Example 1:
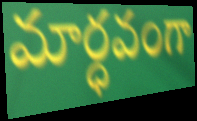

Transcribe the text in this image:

మార్ధవంగా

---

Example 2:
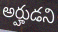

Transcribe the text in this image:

అర్హుడని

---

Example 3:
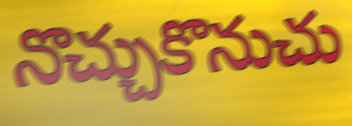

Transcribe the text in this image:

నొచ్చుకొనుచు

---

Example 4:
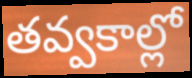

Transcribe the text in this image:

తవ్వకాల్లో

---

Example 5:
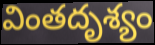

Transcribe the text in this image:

వింతదృశ్యం